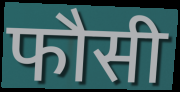
फौसी